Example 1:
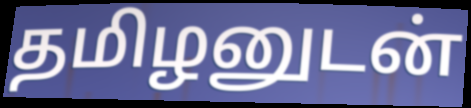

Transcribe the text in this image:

தமிழனுடன்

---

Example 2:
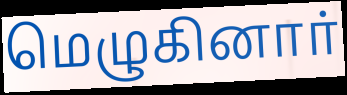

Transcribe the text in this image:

மெழுகினார்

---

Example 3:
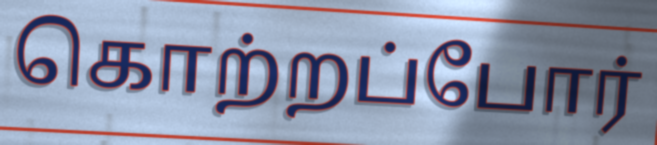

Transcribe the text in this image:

கொற்றப்போர்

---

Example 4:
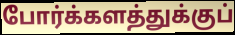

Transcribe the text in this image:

போர்க்களத்துக்குப்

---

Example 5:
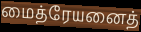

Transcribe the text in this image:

மைத்ரேயனைத்